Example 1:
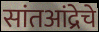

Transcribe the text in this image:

सांतआंद्रेचे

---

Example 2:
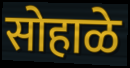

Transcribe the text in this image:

सोहाळे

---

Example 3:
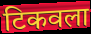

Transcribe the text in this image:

टिकवला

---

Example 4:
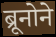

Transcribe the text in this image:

ब्रूनोने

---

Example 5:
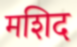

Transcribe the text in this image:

मशिद